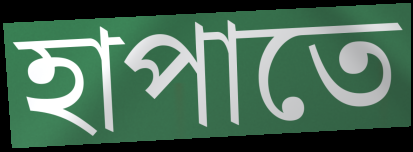
হাপাতে